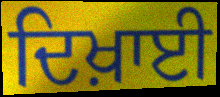
ਦਿਖ਼ਾਈ